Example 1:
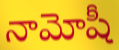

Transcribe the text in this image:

నామోషీ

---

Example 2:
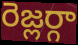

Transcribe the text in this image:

రెజ్లర్గా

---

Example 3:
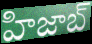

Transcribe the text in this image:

హిజాబ్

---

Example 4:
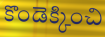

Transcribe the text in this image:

కొండెక్కించి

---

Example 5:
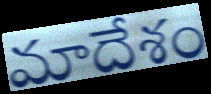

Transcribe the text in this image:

మాదేశం